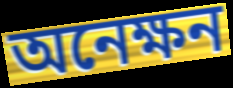
অনেক্ষন